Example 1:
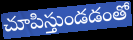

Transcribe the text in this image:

చూపిస్తుండడంతో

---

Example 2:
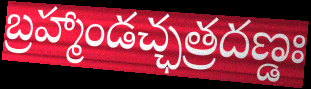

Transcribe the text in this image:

బ్రహ్మాండచ్ఛత్రదణ్డః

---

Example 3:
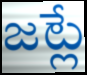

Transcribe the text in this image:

జట్లే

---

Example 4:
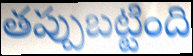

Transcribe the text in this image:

తప్పుబట్టింది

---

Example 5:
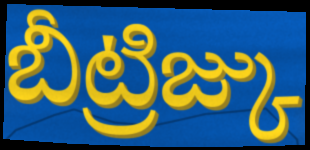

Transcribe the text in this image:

బీట్రిజ్కు